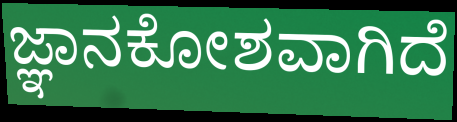
ಜ್ಞಾನಕೋಶವಾಗಿದೆ